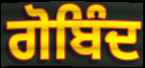
ਗੋਬਿੰਦ